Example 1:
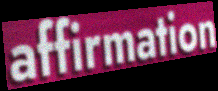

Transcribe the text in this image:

affirmation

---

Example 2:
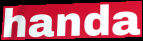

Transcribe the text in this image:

handa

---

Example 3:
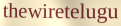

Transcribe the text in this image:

thewiretelugu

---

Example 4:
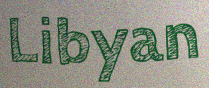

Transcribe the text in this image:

Libyan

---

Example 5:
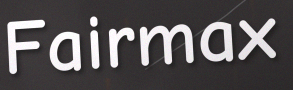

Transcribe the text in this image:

Fairmax